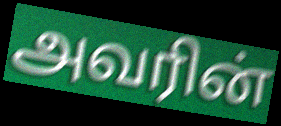
அவரின்